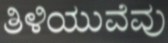
ತಿಳಿಯುವೆವು